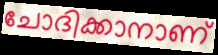
ചോദിക്കാനാണ്